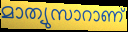
മാത്യുസാറാണ്